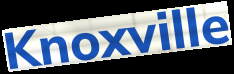
Knoxville